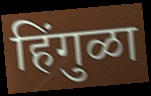
हिंगुळा